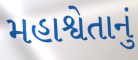
મહાશ્વેતાનું